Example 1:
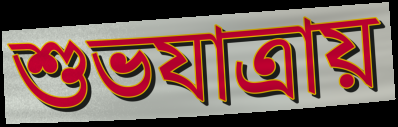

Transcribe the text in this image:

শুভযাত্রায়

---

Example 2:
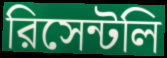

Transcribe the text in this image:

রিসেন্টলি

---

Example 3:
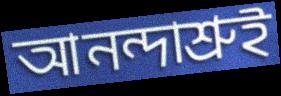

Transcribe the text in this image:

আনন্দাশ্রুই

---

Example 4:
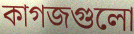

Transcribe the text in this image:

কাগজগুলো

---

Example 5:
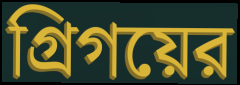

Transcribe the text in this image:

গ্রিগয়ের